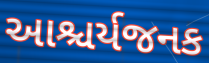
આશ્ચર્યજનક